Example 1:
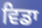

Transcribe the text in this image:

ਵਿਡਾ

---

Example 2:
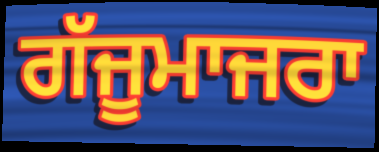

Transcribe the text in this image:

ਗੱਜੂਮਾਜਰਾ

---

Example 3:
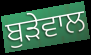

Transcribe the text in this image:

ਬੁੜੇਵਾਲ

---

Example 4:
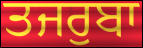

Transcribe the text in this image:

ਤਜਰੁਬਾ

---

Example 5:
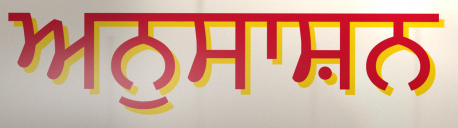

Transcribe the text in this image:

ਅਨੁਸਾਸ਼ਨ